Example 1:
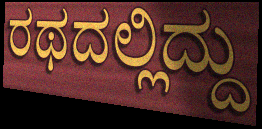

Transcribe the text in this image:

ರಥದಲ್ಲಿದ್ದು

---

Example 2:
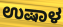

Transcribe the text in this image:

ಉಷಾಳ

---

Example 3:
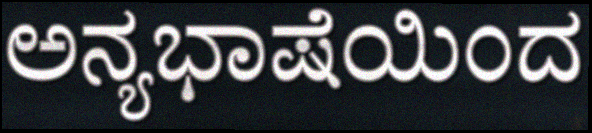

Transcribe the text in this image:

ಅನ್ಯಭಾಷೆಯಿಂದ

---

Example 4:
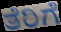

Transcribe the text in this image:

ತೆರಿಗೆ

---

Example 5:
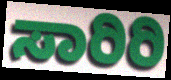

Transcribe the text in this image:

ಸಾರಿರಿ